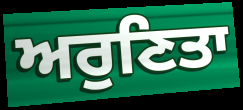
ਅਰੁਣਿਤਾ